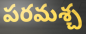
పరమశ్చ